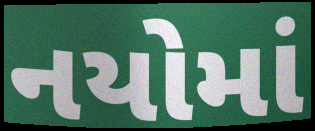
નયોમાં